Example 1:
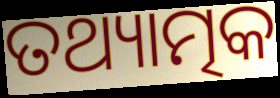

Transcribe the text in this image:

ତଥ୍ୟାତ୍ମକ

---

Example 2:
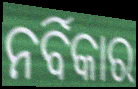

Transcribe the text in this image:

ନର୍ବିକାର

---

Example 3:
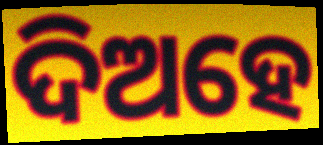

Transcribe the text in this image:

ଦିଅହେ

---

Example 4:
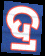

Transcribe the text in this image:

ଦ୍ର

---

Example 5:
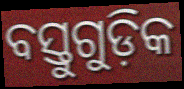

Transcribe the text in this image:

ବସ୍ତୁଗୁଡ଼ିକ